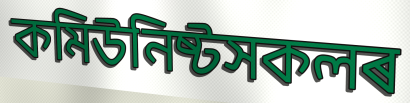
কমিউনিষ্টসকলৰ